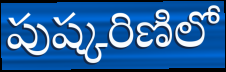
పుష్కరిణిలో